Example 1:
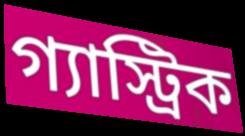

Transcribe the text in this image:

গ্যাস্ট্রিক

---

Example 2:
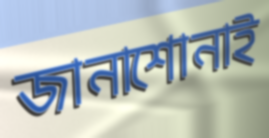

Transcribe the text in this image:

জানাশোনাই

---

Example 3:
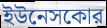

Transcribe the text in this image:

ইউনেসকোর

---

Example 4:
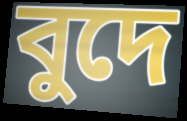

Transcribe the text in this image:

বুদে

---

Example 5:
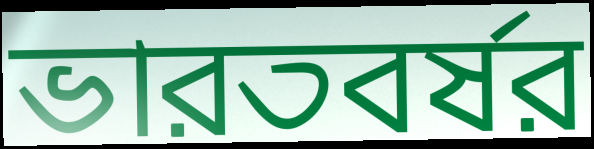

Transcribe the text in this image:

ভারতবর্ষর